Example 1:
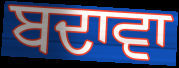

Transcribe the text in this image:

ਬਦਾਵਾ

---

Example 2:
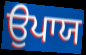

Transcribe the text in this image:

ਉਪਾਯ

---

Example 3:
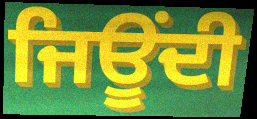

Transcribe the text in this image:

ਜਿਊਂਦੀ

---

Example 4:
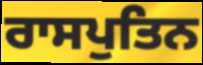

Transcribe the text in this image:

ਰਾਸਪੁਤਿਨ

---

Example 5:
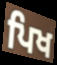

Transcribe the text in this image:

ਪਿਖ